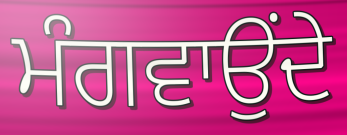
ਮੰਗਵਾਉਂਦੇ